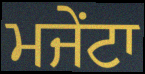
ਮਜੇਂਟਾ